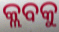
କ୍ଲବକୁ